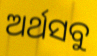
ଅର୍ଥସବୁ